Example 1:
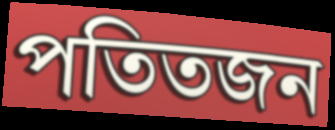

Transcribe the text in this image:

পতিতজন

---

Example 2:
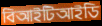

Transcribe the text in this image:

বিআইটিআইডি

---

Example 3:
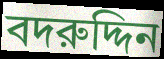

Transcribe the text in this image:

বদরুদ্দিন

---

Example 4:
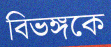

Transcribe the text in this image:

বিভঙ্গকে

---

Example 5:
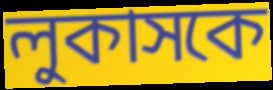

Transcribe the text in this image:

লুকাসকে